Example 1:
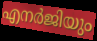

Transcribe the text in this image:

എനർജിയും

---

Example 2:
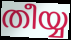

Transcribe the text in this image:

തീയ്യ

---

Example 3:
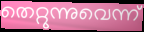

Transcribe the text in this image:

തെറ്റുന്നുവെന്ന്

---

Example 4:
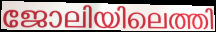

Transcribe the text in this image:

ജോലിയിലെത്തി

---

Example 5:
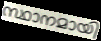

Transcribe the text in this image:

സ്ഥാനമായി